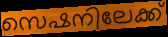
സെഷനിലേക്ക്